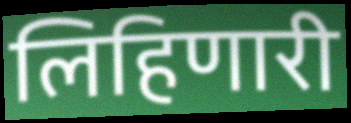
लिहिणारी